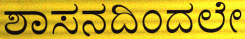
ಶಾಸನದಿಂದಲೇ